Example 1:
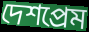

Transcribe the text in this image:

দেশপ্রেম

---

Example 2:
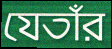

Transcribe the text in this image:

যেতাঁর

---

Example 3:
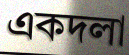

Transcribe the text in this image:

একদলা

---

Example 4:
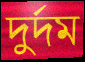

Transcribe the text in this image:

দুর্দম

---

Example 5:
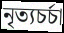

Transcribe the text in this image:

নৃত্যচর্চা